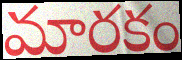
మారకం